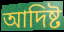
আদিষ্ট